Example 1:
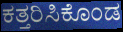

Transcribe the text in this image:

ಕತ್ತರಿಸಿಕೊಂಡ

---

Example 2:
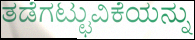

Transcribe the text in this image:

ತಡೆಗಟ್ಟುವಿಕೆಯನ್ನು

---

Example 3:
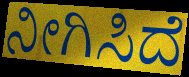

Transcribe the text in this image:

ನೀಗಿಸಿದೆ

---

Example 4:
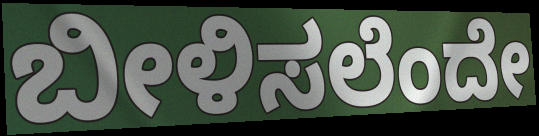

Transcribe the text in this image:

ಬೀಳಿಸಲೆಂದೇ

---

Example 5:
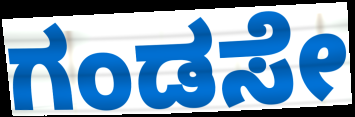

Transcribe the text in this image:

ಗಂಡಸೇ